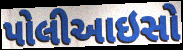
પોલીઆઇસો